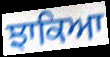
ਝਾਕਿਆ